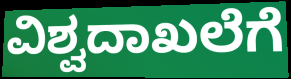
ವಿಶ್ವದಾಖಲೆಗೆ